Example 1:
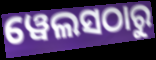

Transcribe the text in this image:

ୱେଲସଠାରୁ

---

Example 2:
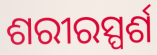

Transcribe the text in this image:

ଶରୀରସ୍ପର୍ଶ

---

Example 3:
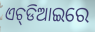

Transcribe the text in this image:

ଏଚ୍‌ଡିଆଇରେ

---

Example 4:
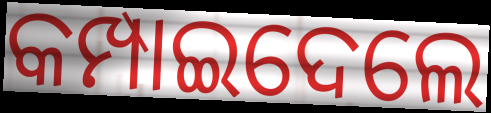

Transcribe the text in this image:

କମ୍ପାଇଦେଲେ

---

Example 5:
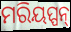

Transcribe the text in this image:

ମରିୟପ୍ପନ୍